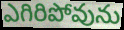
ఎగిరిపోవును